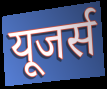
यूजर्स